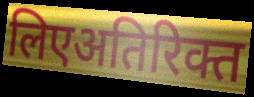
लिएअतिरिक्त